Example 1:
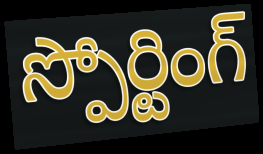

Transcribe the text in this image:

స్పోర్టింగ్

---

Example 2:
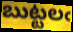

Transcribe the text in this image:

బుట్టలఁ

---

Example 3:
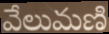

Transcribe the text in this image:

వేలుమణి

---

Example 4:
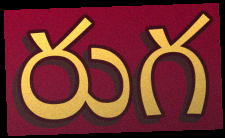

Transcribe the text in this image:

రుగ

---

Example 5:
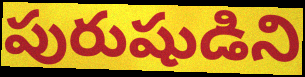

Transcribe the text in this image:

పురుషుడిని